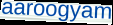
aaroogyam